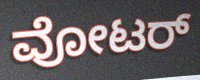
ವೋಟರ್